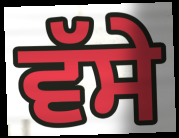
ਵੱਸੇ